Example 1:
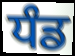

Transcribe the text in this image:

ਧੰਡ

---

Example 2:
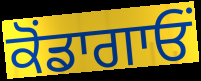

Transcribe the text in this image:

ਕੋਂਡਾਗਾਓਂ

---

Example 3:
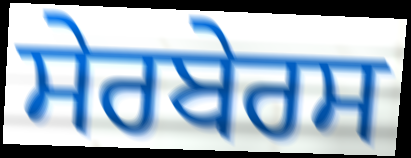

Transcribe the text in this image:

ਸੇਰਬੇਰਸ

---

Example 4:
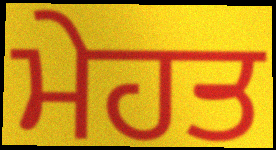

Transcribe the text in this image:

ਮੇਹਤ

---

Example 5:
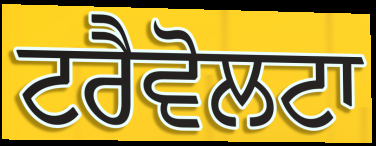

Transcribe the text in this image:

ਟਰੈਵੋਲਟਾ